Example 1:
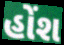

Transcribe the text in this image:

હોંશ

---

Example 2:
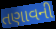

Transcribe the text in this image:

તણાવની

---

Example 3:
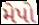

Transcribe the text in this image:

મેપો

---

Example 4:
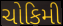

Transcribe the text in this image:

ચોકિમી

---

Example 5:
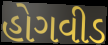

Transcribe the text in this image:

હોગવીડ